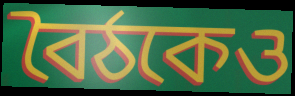
বৈঠকেও